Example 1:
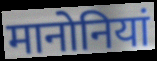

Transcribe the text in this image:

मानोनियां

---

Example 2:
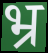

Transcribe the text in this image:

भ्र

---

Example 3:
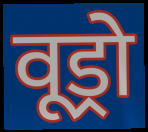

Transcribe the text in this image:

वूड्रो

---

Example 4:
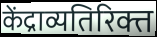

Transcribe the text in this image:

केंद्राव्यतिरिक्त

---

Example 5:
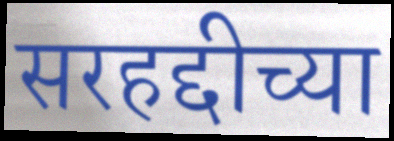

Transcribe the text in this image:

सरहद्दीच्या